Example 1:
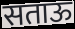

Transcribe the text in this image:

सताऊ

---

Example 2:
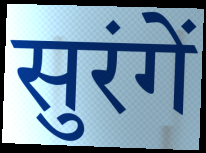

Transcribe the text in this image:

सुरंगें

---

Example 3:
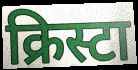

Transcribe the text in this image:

क्रिस्टा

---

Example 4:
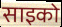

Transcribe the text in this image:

साइको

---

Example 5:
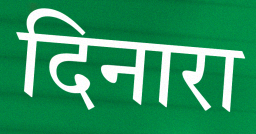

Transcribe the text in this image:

दिनारा